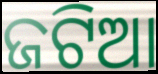
ଜଟିଆ